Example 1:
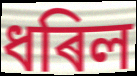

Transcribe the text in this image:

ধৰিল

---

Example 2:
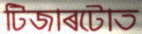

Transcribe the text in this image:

টিজাৰটোত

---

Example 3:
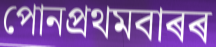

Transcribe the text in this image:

পোনপ্ৰথমবাৰৰ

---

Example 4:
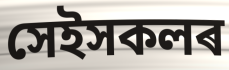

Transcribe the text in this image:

সেইসকলৰ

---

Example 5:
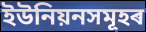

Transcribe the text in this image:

ইউনিয়নসমূহৰ